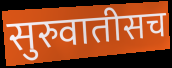
सुरुवातीसच